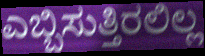
ಎಬ್ಬಿಸುತ್ತಿರಲಿಲ್ಲ